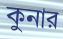
কুনার